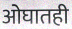
ओघातही